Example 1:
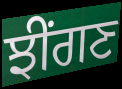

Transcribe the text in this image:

ਝੀਂਗਣ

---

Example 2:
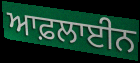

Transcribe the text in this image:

ਆਫ਼ਲਾਈਨ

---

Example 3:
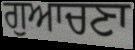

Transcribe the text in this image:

ਗੁਆਚਣਾ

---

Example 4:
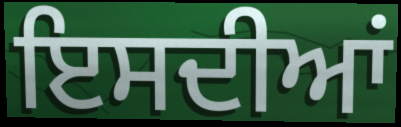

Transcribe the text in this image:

ਇਸਦੀਆਂ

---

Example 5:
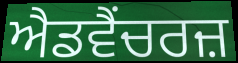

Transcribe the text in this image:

ਐਡਵੈਂਚਰਜ਼